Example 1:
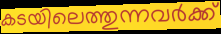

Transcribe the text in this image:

കടയിലെത്തുന്നവർക്ക്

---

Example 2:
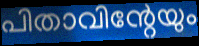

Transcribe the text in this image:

പിതാവിന്റേയും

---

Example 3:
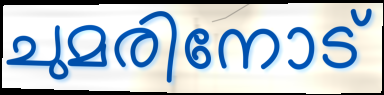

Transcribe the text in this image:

ചുമരിനോട്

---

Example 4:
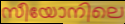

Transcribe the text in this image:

സീയോനിലെ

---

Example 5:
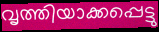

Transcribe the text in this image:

വൃത്തിയാക്കപ്പെട്ടു